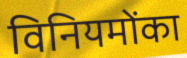
विनियमोंका